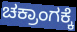
ಚಕ್ರಾಂಗಕ್ಕೆ